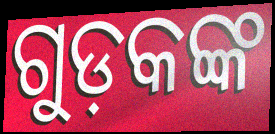
ଗୁଡ଼କଙ୍କ